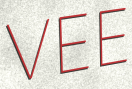
VEE